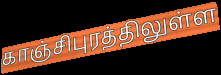
காஞ்சிபுரத்திலுள்ள